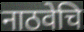
नाठवेचि